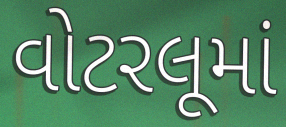
વોટરલૂમાં